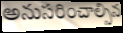
అనుసరించాల్సిన